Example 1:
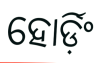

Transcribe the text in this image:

ହୋର୍ଡ଼ିଂ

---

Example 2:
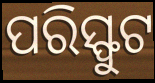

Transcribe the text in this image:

ପରିସ୍ଫୁଟ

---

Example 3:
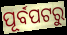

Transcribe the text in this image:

ପୂର୍ବପଟରୁ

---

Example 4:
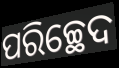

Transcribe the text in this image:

ପରିଚ୍ଛେଦ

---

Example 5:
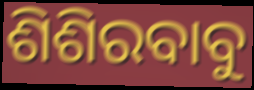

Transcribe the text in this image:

ଶିଶିରବାବୁ